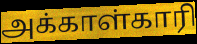
அக்காள்காரி